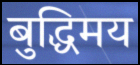
बुद्धिमय